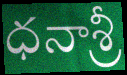
ధనాశ్రీ